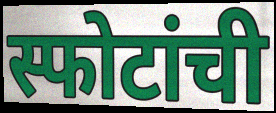
स्फोटांची